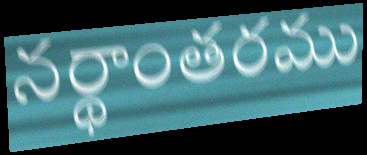
నర్థాంతరము